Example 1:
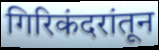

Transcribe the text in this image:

गिरिकंदरांतून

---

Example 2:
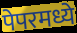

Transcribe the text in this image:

पेपरमध्ये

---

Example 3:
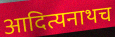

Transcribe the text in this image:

आदित्यनाथच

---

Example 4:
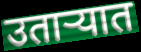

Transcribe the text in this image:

उताऱ्यात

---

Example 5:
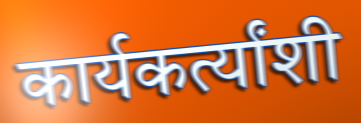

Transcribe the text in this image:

कार्यकर्त्यांशी